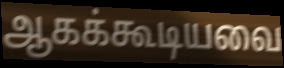
ஆகக்கூடியவை